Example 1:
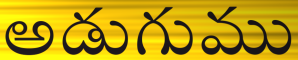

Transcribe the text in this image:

అడుగుము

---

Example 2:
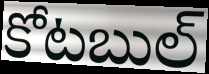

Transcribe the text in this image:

కోటబుల్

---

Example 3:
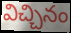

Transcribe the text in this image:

విచ్చినం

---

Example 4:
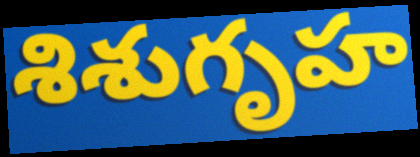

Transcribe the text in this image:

శిశుగృహ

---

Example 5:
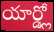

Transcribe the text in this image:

యార్డ్లో